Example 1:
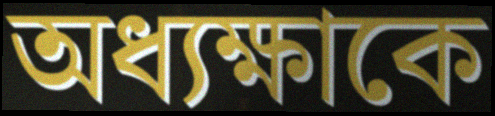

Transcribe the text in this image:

অধ্যক্ষাকে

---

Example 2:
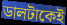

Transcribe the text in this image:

ডালটাকেই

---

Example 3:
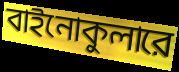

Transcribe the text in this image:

বাইনোকুলারে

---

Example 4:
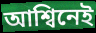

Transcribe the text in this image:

আশ্বিনেই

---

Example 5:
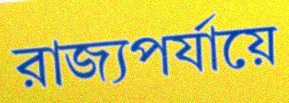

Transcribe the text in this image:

রাজ্যপর্যায়ে